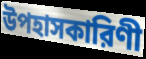
উপহাসকারিণী